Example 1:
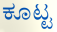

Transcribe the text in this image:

ಕೂಟ್ಟ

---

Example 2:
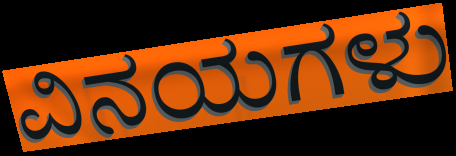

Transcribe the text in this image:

ವಿನಯಗಳು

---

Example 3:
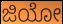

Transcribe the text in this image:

ಜಿಯೋ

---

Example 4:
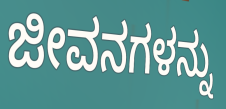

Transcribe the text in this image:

ಜೀವನಗಳನ್ನು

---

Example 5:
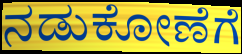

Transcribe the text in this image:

ನಡುಕೋಣೆಗೆ